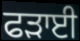
ਫੜਾਈ